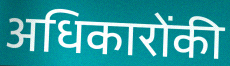
अधिकारोंकी